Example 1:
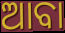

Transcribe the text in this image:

ଆବା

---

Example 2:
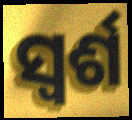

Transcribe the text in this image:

ସ୍ୱର୍ଶ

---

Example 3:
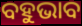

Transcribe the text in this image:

ବହୁଭାବ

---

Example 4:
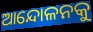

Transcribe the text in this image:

ଆନ୍ଦୋଳନକୁ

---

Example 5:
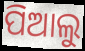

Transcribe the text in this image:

ପିଆଲୁ